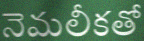
నెమలీకతో